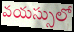
వయస్సులో